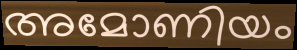
അമോണിയം